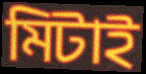
মিটাই